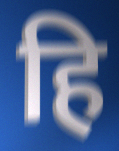
हि